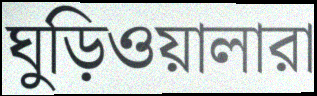
ঘুড়িওয়ালারা